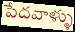
పేదవాళ్ళు